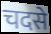
चदसे